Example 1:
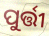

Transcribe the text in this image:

ପୁର୍ତ୍ତୀ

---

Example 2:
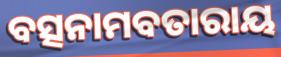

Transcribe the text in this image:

ବତ୍ସନାମବତାରାୟ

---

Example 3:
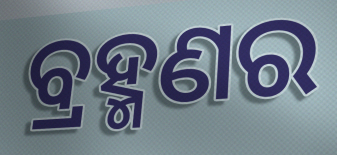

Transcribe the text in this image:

ବ୍ରହ୍ମଣର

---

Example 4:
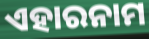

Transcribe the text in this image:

ଏହାରନାମ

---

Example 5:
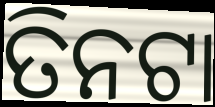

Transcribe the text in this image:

ତିନଟା